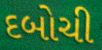
દબોચી